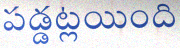
పడ్డట్లయింది